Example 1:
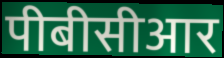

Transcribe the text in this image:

पीबीसीआर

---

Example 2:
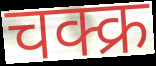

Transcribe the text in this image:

चक्क्र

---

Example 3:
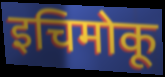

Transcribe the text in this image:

इचिमोकू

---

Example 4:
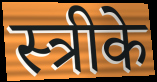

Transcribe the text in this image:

स्त्रीके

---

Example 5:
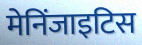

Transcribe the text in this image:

मेनिंजाइटिस